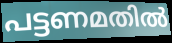
പട്ടണമതിൽ